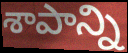
శాపాన్ని